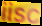
iisc